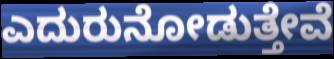
ಎದುರುನೋಡುತ್ತೇವೆ